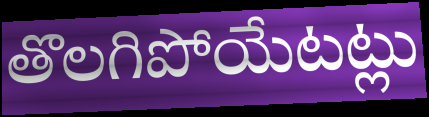
తొలగిపోయేటట్లు